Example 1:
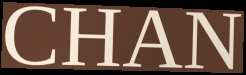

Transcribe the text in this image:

CHAN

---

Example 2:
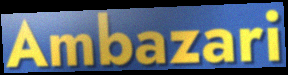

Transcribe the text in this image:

Ambazari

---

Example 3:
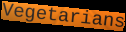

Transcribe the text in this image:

Vegetarians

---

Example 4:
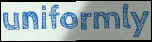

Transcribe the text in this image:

uniformly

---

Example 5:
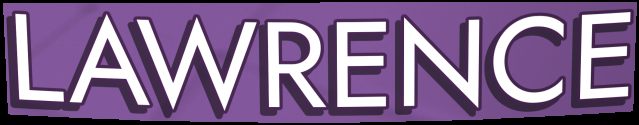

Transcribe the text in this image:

LAWRENCE